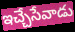
ఇచ్చేసేవాడు